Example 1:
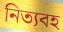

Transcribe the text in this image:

নিত্যবহ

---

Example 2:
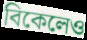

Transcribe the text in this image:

বিকেলেও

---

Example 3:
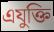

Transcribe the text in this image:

এযুক্তি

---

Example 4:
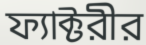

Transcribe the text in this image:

ফ্যাক্টরীর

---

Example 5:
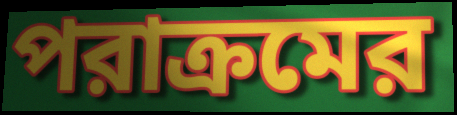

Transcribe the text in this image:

পরাক্রমের